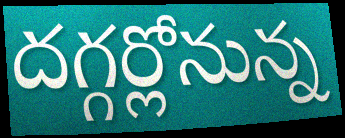
దగ్గర్లోనున్న